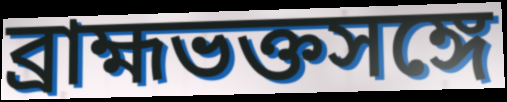
ব্রাহ্মভক্তসঙ্গে